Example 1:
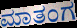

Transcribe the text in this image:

ಮಾತಂಗ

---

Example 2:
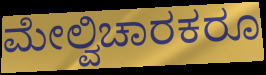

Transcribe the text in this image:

ಮೇಲ್ವಿಚಾರಕರೂ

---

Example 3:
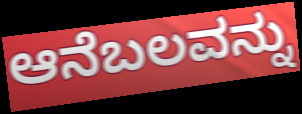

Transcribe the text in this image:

ಆನೆಬಲವನ್ನು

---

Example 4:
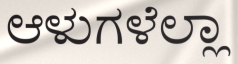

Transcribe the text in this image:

ಆಳುಗಳೆಲ್ಲಾ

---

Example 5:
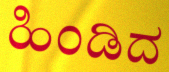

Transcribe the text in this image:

ಹಿಂಡಿದ